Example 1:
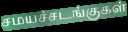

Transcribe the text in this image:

சமயச்சடங்குகள்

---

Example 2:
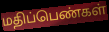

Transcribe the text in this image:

மதிப்பெண்கள்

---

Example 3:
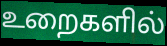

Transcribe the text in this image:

உறைகளில்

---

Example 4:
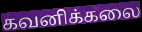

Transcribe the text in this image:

கவனிக்கலை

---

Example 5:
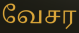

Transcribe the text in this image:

வேசர